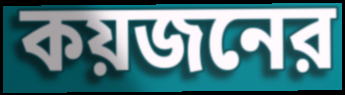
কয়জনের